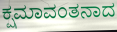
ಕ್ಷಮಾವಂತನಾದ